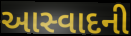
આસ્વાદની